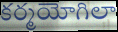
కర్మయోగిలా